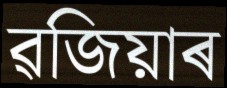
ৱজিয়াৰ